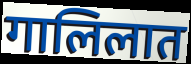
गालिलात